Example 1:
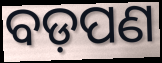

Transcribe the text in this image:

ବଡ଼ପଣ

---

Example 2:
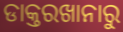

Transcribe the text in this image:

ଡାକ୍ତରଖାନାରୁ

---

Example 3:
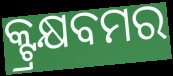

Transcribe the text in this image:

କ୍ଟ୍ରକ୍ଷବମର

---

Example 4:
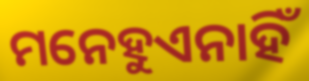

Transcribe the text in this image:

ମନେହୁଏନାହିଁ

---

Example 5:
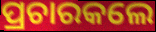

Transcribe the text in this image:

ପ୍ରଚାରକଲେ